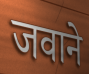
जवाने